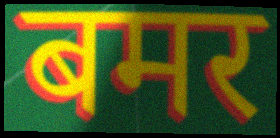
बमर